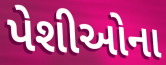
પેશીઓના